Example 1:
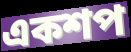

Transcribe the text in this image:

একশপ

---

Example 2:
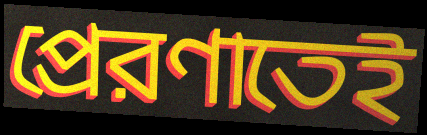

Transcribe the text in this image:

প্রেরণাতেই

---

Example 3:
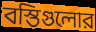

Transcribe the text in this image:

বস্তিগুলোর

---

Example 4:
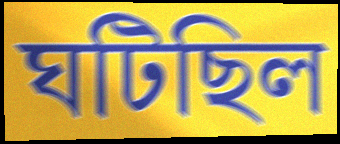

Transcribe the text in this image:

ঘটিছিল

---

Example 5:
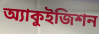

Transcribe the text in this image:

অ্যাকুইজিশন